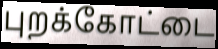
புறக்கோட்டை